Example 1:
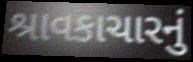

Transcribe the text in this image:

શ્રાવકાચારનું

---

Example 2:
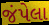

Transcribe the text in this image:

જંપેલા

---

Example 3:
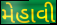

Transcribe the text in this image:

મેહાવી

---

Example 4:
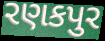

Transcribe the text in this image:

રણકપુર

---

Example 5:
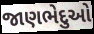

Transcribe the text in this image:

જાણભેદુઓ